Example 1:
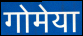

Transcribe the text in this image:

गोमेया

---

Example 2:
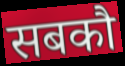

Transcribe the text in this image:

सबकौ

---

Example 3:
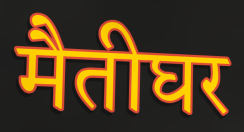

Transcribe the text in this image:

मैतीघर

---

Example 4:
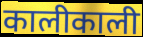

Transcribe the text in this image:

कालीकाली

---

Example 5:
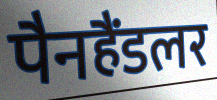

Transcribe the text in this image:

पैनहैंडलर